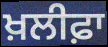
ਖ਼ਲੀਫ਼ਾ